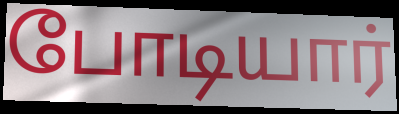
போடியார்